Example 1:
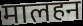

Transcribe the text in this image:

मालहन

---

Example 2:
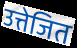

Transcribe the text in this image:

उत्तेजित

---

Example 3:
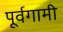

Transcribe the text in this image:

पूर्वगामी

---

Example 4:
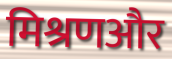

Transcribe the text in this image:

मिश्रणऔर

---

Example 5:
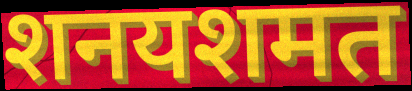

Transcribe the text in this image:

शनयशमत